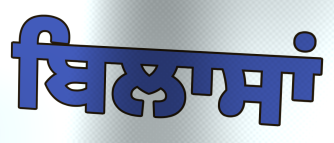
ਬਿਲਾਸਾਂ